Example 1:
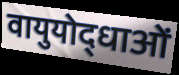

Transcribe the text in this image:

वायुयोद्धाओं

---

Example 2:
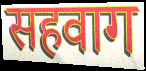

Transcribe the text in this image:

सहवाग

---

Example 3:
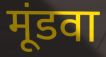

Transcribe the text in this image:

मूंडवा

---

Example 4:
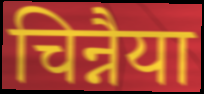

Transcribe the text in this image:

चिन्नैया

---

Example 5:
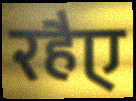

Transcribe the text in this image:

रहैए